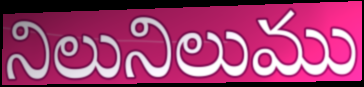
నిలునిలుము